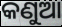
କଣୁଆ